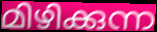
മിഴിക്കുന്ന